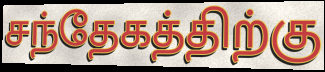
சந்தேகத்திற்கு